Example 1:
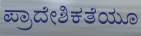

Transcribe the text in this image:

ಪ್ರಾದೇಶಿಕತೆಯೂ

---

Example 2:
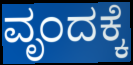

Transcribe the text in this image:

ವೃಂದಕ್ಕೆ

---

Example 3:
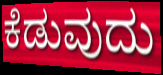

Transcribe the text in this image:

ಕೆಡುವುದು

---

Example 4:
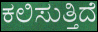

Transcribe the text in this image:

ಕಲಿಸುತ್ತಿದೆ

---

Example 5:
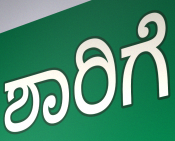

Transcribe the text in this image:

ಶಾರಿಗೆ